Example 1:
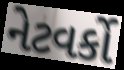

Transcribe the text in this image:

નેટવર્કો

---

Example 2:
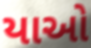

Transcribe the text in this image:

યાઓ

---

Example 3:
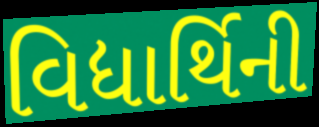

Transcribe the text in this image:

વિદ્યાર્થિની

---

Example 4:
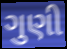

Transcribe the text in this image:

ગુણી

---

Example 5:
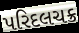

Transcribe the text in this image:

પરિદલચક્ર